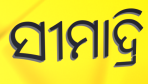
ସୀମାଦ୍ରି